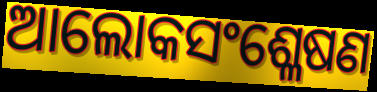
ଆଲୋକସଂଶ୍ଳେଷଣ